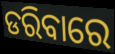
ଡରିବାରେ